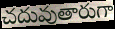
చదువుతారుగా